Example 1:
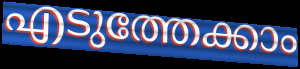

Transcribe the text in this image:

എടുത്തേക്കാം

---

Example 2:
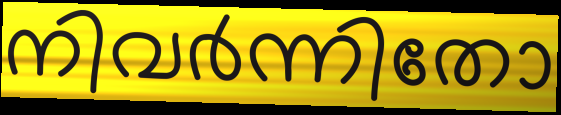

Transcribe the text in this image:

നിവർന്നിതോ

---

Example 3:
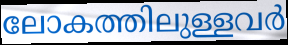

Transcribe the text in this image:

ലോകത്തിലുള്ളവർ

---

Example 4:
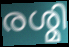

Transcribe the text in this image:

രശ്മി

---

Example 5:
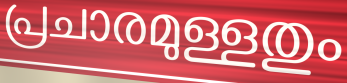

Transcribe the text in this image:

പ്രചാരമുള്ളതും